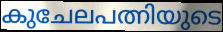
കുചേലപത്നിയുടെ